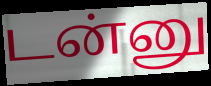
டன்னு